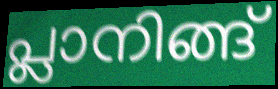
പ്ലാനിങ്ങ്